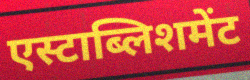
एस्टाब्लिशमेंट